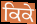
ਕਿਕੇ